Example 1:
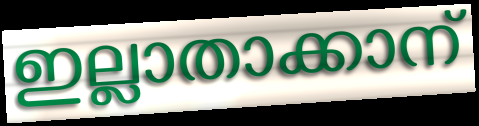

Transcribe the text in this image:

ഇല്ലാതാക്കാന്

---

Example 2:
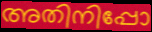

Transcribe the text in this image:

അതിനിപ്പോ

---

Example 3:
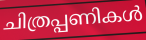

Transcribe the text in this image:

ചിത്രപ്പണികൾ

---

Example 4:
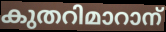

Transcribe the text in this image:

കുതറിമാറാന്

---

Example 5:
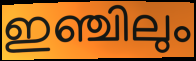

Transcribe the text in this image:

ഇഞ്ചിലും